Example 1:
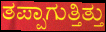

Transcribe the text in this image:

ತಪ್ಪಾಗುತ್ತಿತ್ತು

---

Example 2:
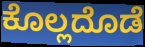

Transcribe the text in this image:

ಕೊಲ್ಲದೊಡೆ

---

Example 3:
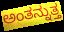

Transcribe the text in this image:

ಅಂತನ್ನುತ್ತ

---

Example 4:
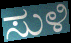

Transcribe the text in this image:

ಸುಳಿ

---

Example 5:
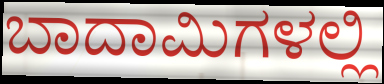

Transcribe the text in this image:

ಬಾದಾಮಿಗಳಲ್ಲಿ